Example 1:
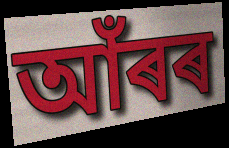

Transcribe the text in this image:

আঁৰৰ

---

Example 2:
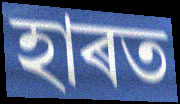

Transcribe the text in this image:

হাৰত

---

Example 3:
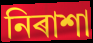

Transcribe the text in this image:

নিৰাশা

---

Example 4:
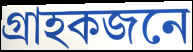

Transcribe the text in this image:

গ্ৰাহকজনে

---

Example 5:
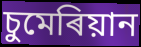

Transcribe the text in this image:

চুমেৰিয়ান